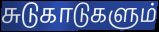
சுடுகாடுகளும்